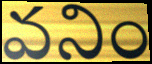
వనిం